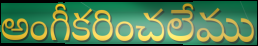
అంగీకరించలేము